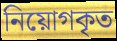
নিয়োগকৃত